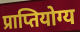
प्राप्तियोग्य